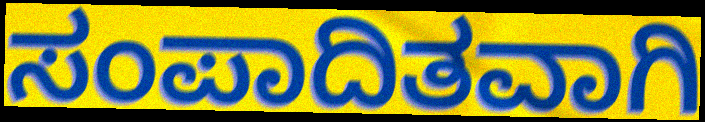
ಸಂಪಾದಿತವಾಗಿ